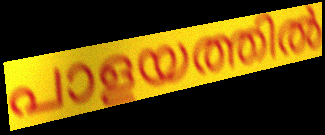
പാളയത്തിൽ